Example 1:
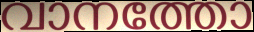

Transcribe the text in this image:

വാനത്തോ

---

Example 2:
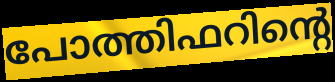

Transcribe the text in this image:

പോത്തിഫറിന്റെ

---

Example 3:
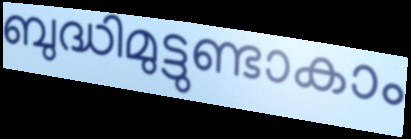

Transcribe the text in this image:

ബുദ്ധിമുട്ടുണ്ടാകാം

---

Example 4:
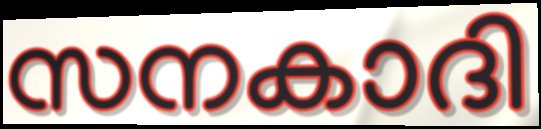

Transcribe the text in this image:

സനകാദി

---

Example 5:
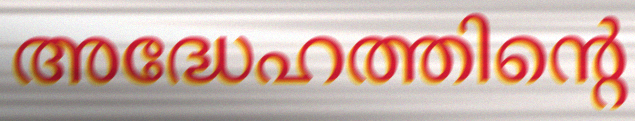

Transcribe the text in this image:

അദ്ധേഹത്തിന്റെ